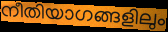
നീതിയാഗങ്ങളിലും